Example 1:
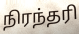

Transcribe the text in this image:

நிரந்தரி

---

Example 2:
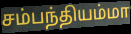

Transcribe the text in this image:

சம்பந்தியம்மா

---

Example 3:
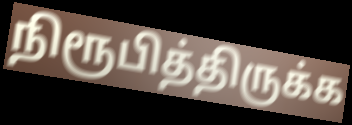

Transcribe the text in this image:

நிரூபித்திருக்க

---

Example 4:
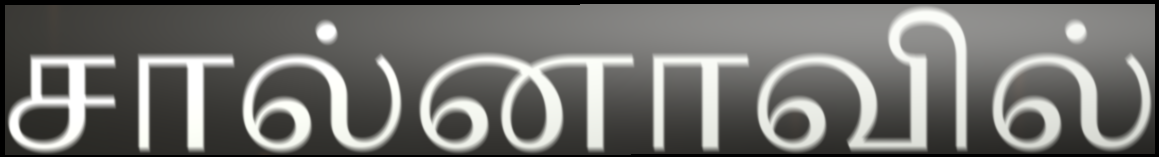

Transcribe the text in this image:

சால்னாவில்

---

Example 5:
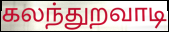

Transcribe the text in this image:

கலந்துறவாடி